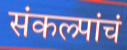
संकल्पांचं